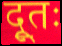
दू॒तः